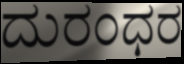
ದುರಂಧರ